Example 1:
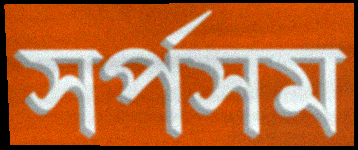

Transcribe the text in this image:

সর্পসম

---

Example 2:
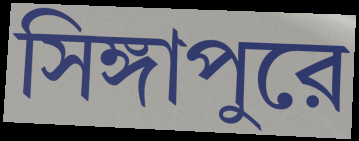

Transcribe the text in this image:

সিঙ্গাপুরে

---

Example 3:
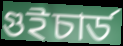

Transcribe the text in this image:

গুইচার্ড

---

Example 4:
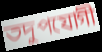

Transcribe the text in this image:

তদুপযোগী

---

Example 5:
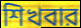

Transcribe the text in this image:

শিখবার